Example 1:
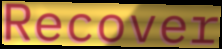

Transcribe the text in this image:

Recover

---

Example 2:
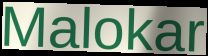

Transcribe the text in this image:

Malokar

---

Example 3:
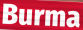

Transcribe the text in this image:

Burma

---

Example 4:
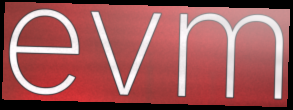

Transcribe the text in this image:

evm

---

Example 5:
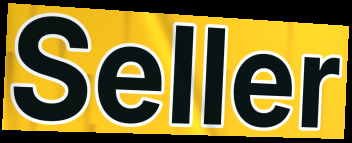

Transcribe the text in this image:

Seller